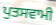
ਪੁਤਸਵਾਮੀ